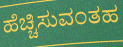
ಹೆಚ್ಚಿಸುವಂತಹ